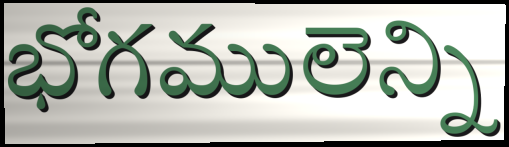
భోగములెన్ని